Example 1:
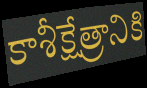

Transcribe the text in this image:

కాశీక్షేత్రానికి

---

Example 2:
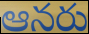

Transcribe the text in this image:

ఆనరు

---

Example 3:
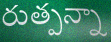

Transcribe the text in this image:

రుత్పన్నా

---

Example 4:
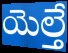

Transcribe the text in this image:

యెల్తే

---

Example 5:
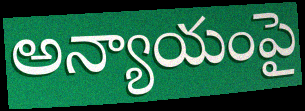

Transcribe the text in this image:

అన్యాయంపై